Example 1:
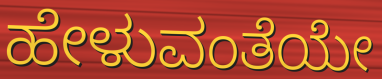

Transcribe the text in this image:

ಹೇಳುವಂತೆಯೇ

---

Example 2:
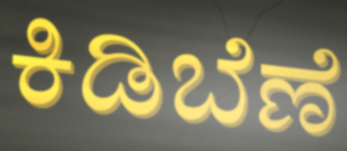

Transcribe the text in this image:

ಕಿಡಿಬೆಣೆ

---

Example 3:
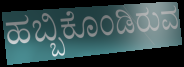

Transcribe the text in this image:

ಹಬ್ಬಿಕೊಂಡಿರುವ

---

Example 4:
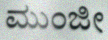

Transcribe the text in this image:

ಮುಂಜೀ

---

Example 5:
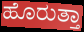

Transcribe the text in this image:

ಹೊರುತ್ತಾ